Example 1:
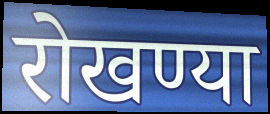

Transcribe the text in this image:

रोखण्या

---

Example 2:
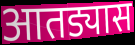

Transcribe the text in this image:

आतड्यास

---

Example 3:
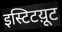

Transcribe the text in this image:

इस्टिटय़ूट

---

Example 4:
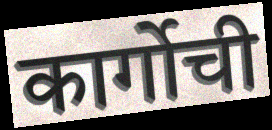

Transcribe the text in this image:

कार्गोची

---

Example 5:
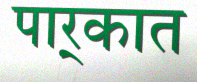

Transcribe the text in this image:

पार्कात